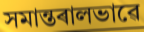
সমান্তৰালভাৱে